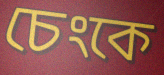
চেংকে